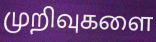
முறிவுகளை